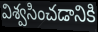
విశ్వసించడానికి